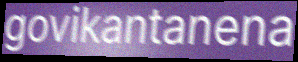
govikantanena